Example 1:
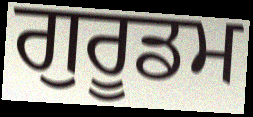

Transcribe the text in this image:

ਗੁਰੂਡਮ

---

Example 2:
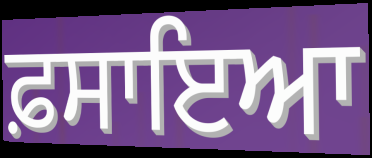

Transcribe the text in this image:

ਫ਼ਸਾਇਆ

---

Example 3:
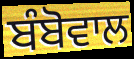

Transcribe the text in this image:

ਬੰਬੋਵਾਲ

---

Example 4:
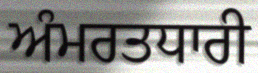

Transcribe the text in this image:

ਅੰਮਰਤਧਾਰੀ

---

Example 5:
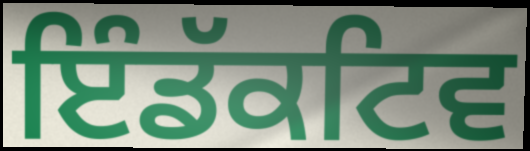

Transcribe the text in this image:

ਇੰਡੱਕਟਿਵ